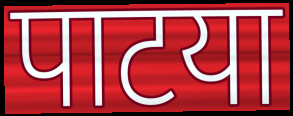
पाटया